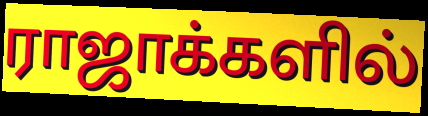
ராஜாக்களில்